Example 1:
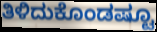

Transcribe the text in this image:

ತಿಳಿದುಕೊಂಡಷ್ಟೂ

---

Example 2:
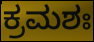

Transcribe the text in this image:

ಕ್ರಮಶಃ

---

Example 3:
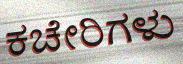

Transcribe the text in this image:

ಕಚೇರಿಗಳು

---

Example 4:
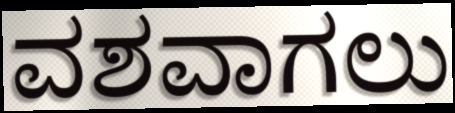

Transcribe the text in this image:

ವಶವಾಗಲು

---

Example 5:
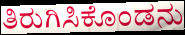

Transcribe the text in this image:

ತಿರುಗಿಸಿಕೊಂಡನು